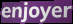
enjoyer